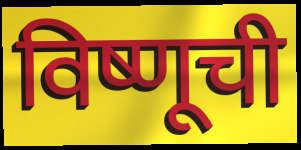
विष्णूची